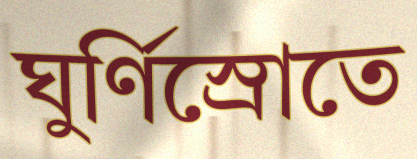
ঘুর্ণিস্রোতে